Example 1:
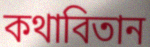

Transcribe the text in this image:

কথাবিতান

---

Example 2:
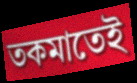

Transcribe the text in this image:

তকমাতেই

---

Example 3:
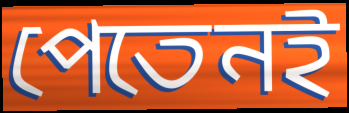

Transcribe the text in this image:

পেতেনই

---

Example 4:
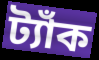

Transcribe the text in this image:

ট্যাঁক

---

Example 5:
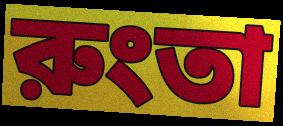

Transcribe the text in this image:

রুংতা